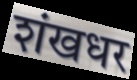
शंखधर